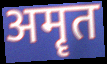
अमॄत